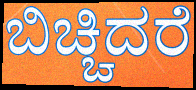
ಬಿಚ್ಚಿದರೆ